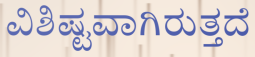
ವಿಶಿಷ್ಟವಾಗಿರುತ್ತದೆ